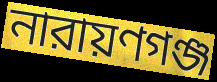
নারায়ণগঞ্জ